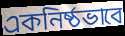
একনিষ্ঠভাবে